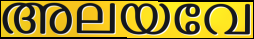
അലയവേ